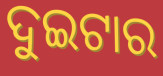
ଦୁଇଟାର